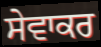
ਸੇਵਾਕਰ